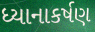
ધ્યાનાકર્ષણ